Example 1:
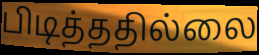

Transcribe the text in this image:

பிடித்ததில்லை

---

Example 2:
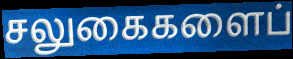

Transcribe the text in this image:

சலுகைகளைப்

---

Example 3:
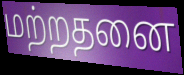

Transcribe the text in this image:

மற்றதனை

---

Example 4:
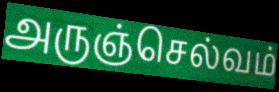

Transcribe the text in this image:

அருஞ்செல்வம்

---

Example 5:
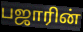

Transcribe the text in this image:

பஜாரின்